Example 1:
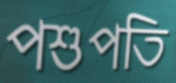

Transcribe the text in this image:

পশুপতি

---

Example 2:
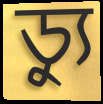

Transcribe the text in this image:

ড্যু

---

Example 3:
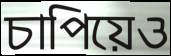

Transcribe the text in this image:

চাপিয়েও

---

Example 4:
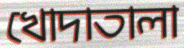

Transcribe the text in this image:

খোদাতালা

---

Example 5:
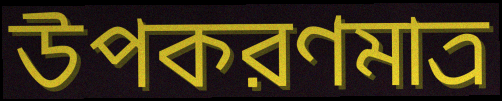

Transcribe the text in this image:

উপকরণমাত্র